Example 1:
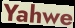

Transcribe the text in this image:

Yahwe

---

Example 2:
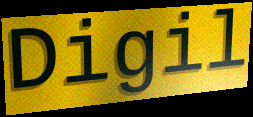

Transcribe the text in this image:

Digil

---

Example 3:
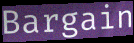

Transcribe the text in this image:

Bargain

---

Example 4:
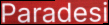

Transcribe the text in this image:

Paradesi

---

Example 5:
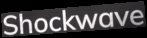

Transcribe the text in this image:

Shockwave